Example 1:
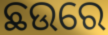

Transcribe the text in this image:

ଛଉରେ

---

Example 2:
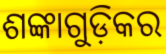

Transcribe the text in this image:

ଶଙ୍କାଗୁଡ଼ିକର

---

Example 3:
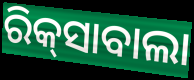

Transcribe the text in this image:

ରିକ୍‍ସାବାଲା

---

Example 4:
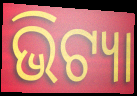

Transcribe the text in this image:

ଭିଟ୍ୟା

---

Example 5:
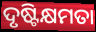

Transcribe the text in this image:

ଦୃଷ୍ଟିକ୍ଷମତା